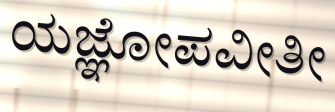
ಯಜ್ಞೋಪವೀತೀ